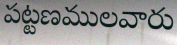
పట్టణములవారు